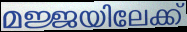
മജ്ജയിലേക്ക്